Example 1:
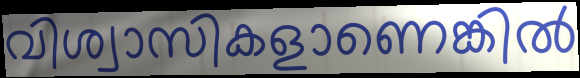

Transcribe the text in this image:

വിശ്വാസികളാണെങ്കിൽ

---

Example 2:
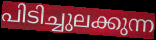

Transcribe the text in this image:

പിടിച്ചുലക്കുന്ന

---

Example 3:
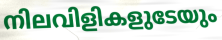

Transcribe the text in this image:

നിലവിളികളുടേയും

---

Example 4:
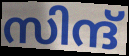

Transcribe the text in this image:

സിന്ദ്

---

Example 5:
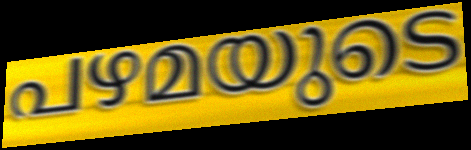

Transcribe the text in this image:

പഴമയുടെ